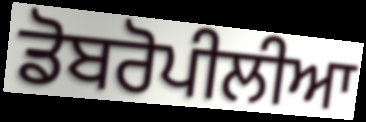
ਡੋਬਰੋਪੀਲੀਆ